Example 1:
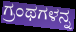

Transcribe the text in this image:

ಗ್ರಂಥಗಳನ್ನ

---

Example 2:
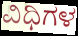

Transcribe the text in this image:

ವಿಧಿಗಳ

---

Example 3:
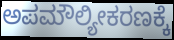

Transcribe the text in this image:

ಅಪಮೌಲ್ಯೀಕರಣಕ್ಕೆ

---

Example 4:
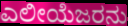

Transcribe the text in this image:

ಎಲೀಯೆಜರನು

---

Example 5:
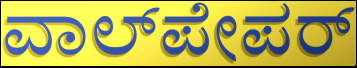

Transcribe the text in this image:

ವಾಲ್‌ಪೇಪರ್